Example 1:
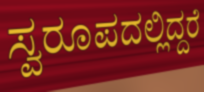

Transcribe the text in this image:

ಸ್ವರೂಪದಲ್ಲಿದ್ದರೆ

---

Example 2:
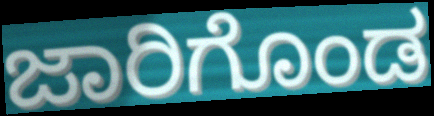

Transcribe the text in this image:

ಜಾರಿಗೊಂಡ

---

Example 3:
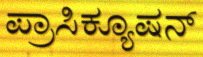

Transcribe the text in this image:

ಪ್ರಾಸಿಕ್ಯೂಷನ್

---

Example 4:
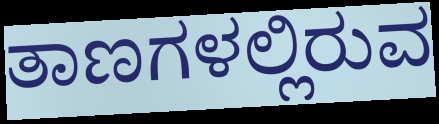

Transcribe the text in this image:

ತಾಣಗಳಲ್ಲಿರುವ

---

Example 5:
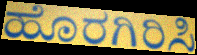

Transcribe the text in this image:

ಹೊರಗಿರಿಸಿ